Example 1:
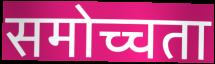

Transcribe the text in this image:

समोच्चता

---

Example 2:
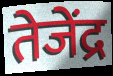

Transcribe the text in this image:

तेजेंद्र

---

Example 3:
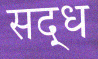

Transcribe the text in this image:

सद्ध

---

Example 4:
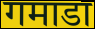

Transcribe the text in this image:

गमाडा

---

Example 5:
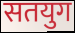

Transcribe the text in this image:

सतयुग